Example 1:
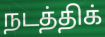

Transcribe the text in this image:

நடத்திக்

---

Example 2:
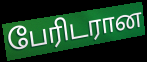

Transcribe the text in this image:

பேரிடரான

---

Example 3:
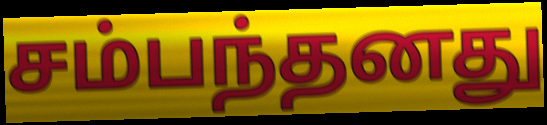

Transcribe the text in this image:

சம்பந்தனது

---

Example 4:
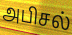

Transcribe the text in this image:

அபிசல்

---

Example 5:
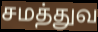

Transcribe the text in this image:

சமத்துவ